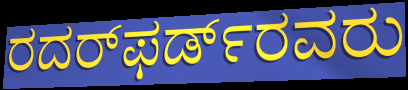
ರದರ್‌ಫರ್ಡ್‌ರವರು